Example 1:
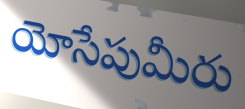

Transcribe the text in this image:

యోసేపుమీరు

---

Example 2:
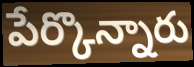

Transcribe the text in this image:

పేర్కొన్నారు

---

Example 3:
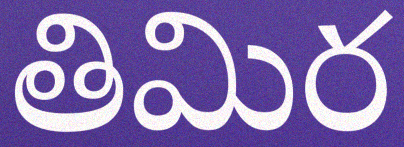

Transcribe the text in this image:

తిమిర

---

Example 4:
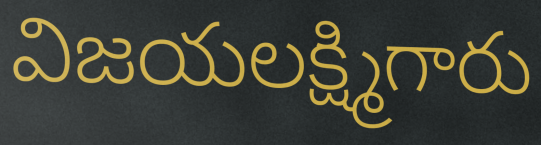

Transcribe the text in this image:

విజయలక్ష్మిగారు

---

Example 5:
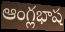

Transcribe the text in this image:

ఆంగ్లభాష